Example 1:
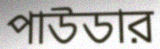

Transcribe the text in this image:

পাউডার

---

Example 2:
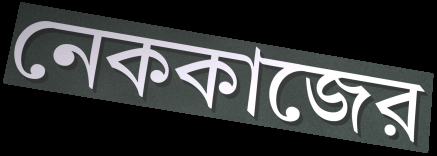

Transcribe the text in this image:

নেককাজের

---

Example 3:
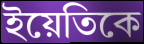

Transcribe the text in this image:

ইয়েতিকে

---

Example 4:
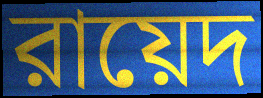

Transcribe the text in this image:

রায়েদ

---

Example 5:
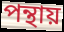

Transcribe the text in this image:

পন্থায়